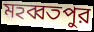
মহব্বতপুর